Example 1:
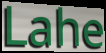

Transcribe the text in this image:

Lahe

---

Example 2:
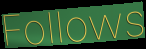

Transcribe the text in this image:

Follows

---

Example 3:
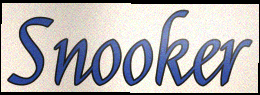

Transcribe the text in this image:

Snooker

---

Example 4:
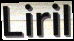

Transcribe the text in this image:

Liril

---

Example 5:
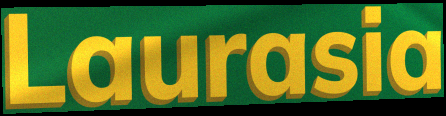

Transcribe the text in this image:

Laurasia